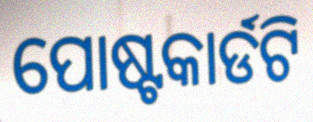
ପୋଷ୍ଟକାର୍ଡଟି